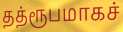
தத்ரூபமாகச்